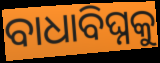
ବାଧାବିଘ୍ନକୁ